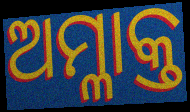
ଅମ୍ଳାକ୍ତ